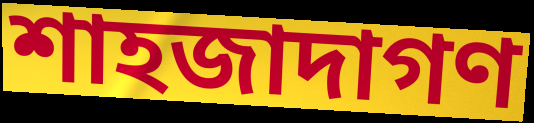
শাহজাদাগণ